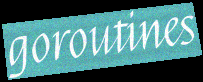
goroutines